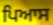
ਪਿਆਸ